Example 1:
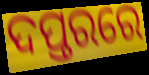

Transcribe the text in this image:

ଦପ୍ତରରେ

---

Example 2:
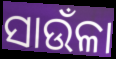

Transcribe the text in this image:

ସାଉଁଳା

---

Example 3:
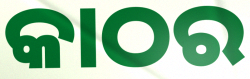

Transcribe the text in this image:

କାଠର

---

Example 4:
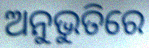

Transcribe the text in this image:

ଅନୁଭୁତିରେ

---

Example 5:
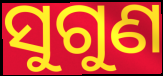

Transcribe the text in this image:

ସୁଗୁଣ